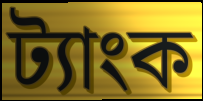
ট্যাংক